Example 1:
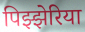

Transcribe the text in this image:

पिझ्झेरिया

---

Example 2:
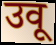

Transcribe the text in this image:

उवू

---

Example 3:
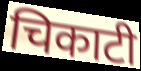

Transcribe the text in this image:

चिकाटी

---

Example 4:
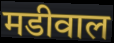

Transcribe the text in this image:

मडीवाल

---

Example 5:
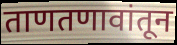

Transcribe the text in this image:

ताणतणावांतून